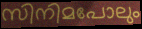
സിനിമപോലും